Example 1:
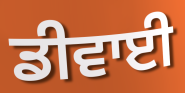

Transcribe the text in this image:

ਡੀਵਾਈ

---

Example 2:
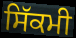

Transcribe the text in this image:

ਸਿੱਕਮੀ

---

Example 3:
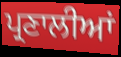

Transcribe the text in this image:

ਪ੍ਰਣਾਲੀਆਂ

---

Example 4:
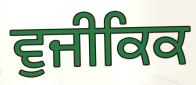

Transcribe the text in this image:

ਵੁਜੀਕਿਕ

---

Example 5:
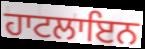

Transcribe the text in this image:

ਹਾਟਲਾਇਨ